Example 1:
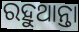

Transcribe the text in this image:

ରହୁଥାନ୍ତା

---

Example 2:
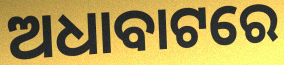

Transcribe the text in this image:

ଅଧାବାଟରେ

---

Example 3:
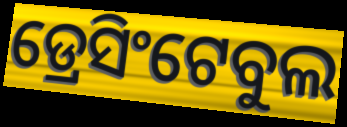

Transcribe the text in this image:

ଡ୍ରେସିଂଟେବୁଲ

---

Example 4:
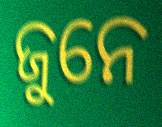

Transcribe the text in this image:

ଜୁନେ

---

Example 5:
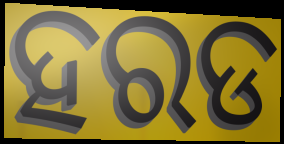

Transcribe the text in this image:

ହରଡ